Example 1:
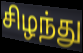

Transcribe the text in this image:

சிழந்து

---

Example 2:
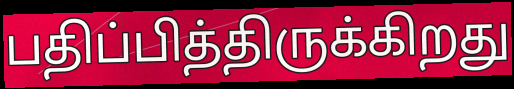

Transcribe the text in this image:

பதிப்பித்திருக்கிறது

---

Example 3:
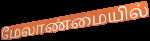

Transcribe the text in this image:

மேலாண்மையில்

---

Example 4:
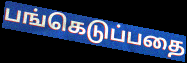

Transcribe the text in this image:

பங்கெடுப்பதை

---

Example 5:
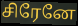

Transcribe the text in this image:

சிரேனே